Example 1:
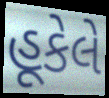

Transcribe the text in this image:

હૂકેલે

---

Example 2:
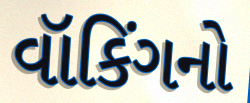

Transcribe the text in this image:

વૉકિંગનો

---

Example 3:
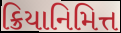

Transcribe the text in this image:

ક્રિયાનિમિત્ત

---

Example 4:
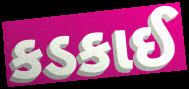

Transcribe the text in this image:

કડકાઈ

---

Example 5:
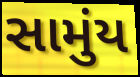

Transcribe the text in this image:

સામુંય